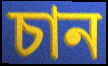
চান